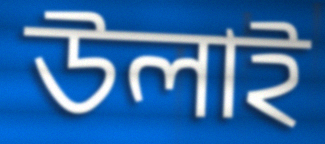
উলাই